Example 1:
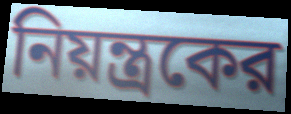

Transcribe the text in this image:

নিয়ন্ত্রকের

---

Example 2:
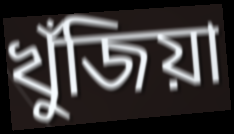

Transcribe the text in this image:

খুঁজিয়া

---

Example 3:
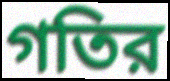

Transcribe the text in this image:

গতির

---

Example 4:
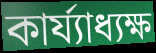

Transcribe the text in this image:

কার্য্যাধ্যক্ষ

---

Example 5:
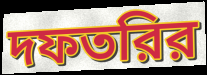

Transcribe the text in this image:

দফতরির